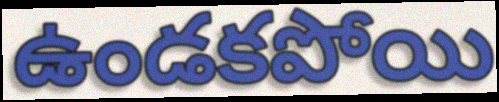
ఉండకపోయి